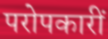
परोपकारीं